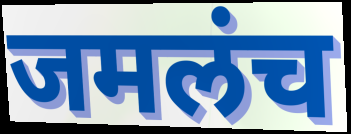
जमलंच